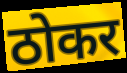
ठोकर